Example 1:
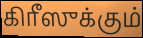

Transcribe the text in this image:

கிரீஸுக்கும்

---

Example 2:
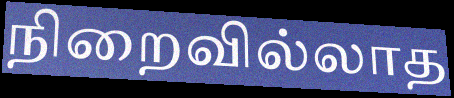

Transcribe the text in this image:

நிறைவில்லாத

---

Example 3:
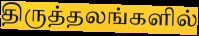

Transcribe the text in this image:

திருத்தலங்களில்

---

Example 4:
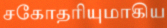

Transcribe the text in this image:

சகோதரியுமாகிய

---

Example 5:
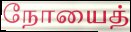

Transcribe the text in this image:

நோயைத்